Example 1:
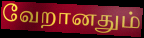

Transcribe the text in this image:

வேறானதும்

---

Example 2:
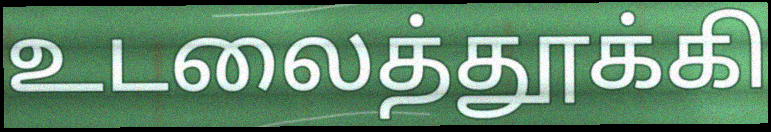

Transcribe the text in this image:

உடலைத்தூக்கி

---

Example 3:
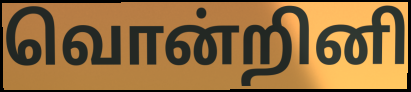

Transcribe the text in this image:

வொன்றினி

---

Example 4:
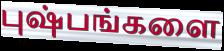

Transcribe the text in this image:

புஷ்பங்களை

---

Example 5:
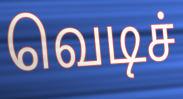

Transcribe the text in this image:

வெடிச்